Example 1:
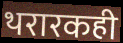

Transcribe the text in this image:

थरारकही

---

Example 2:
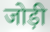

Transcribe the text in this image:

जोड़ी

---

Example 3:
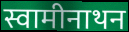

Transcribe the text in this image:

स्वामीनाथन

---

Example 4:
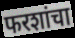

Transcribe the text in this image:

फरशांचा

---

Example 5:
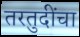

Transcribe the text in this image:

तरतुदींचा